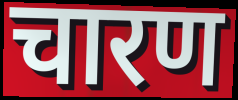
चारण